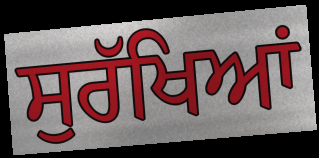
ਸੁਰੱਖਿਆਂ